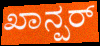
ಖಾನ್ಪರ್